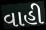
વાહી